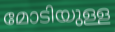
മോടിയുള്ള